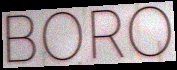
BORO